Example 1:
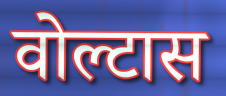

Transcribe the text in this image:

वोल्टास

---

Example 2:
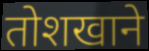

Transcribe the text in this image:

तोशखाने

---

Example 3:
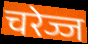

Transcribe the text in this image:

चरेज्ज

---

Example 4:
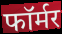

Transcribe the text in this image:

फॉर्मर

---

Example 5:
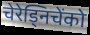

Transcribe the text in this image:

चेरेड्निचेंको